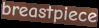
breastpiece